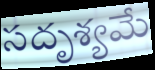
సదృశ్యమే